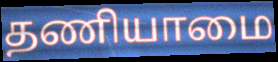
தணியாமை